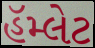
હૅમ્લેટ